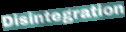
Disintegration